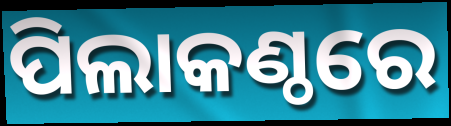
ପିଲାକଣ୍ଠରେ